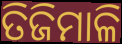
ତିଜିମାଳି